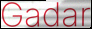
Gadar